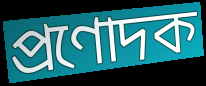
প্রণোদক